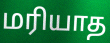
மரியாத